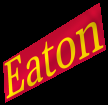
Eaton